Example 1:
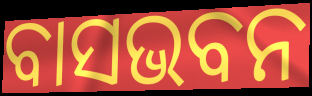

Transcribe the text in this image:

ବାସଭବନ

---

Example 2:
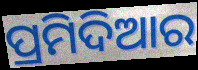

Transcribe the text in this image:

ପ୍ରମିଦିଆର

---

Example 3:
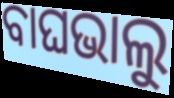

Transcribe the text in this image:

ବାଘଭାଲୁ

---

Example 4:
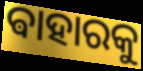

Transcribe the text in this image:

ଵାହାରକୁ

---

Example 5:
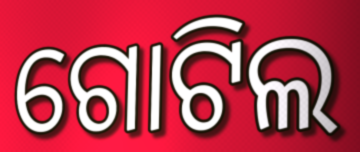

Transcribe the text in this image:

ଗୋଟିଲ